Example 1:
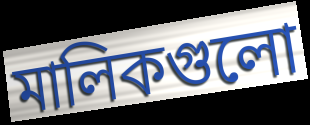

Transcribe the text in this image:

মালিকগুলো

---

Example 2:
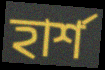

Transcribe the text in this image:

হার্শ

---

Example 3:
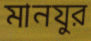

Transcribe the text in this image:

মানযুর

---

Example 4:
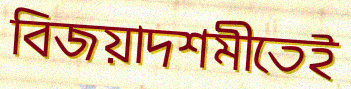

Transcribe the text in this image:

বিজয়াদশমীতেই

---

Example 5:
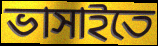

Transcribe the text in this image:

ভাসাইতে